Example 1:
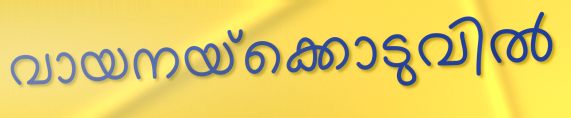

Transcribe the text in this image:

വായനയ്‌ക്കൊടുവിൽ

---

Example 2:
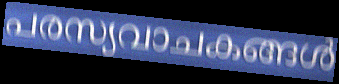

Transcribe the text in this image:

പരസ്യവാചകങ്ങൾ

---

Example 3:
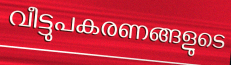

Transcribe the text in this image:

വീട്ടുപകരണങ്ങളുടെ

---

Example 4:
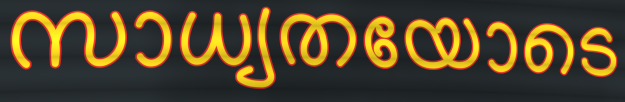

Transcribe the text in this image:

സാധ്യതയോടെ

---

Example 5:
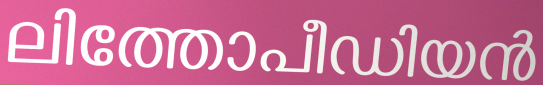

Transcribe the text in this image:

ലിത്തോപീഡിയൻ